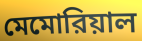
মেমোরিয়াল